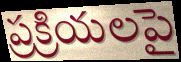
ప్రక్రియలపై